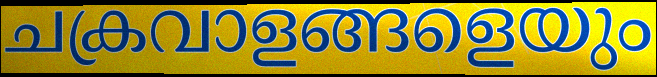
ചക്രവാളങ്ങളെയും